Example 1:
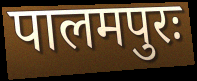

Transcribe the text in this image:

पालमपुरः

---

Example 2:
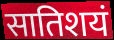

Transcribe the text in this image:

सातिशयं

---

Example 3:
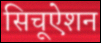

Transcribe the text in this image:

सिचूऐशन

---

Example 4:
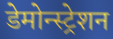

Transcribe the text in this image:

डेमोन्स्ट्रेशन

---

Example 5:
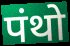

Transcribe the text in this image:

पंथो